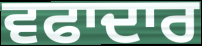
ਵਫਾਦਾਰ